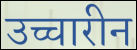
उच्चारीन